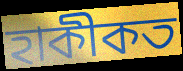
হাকীকত